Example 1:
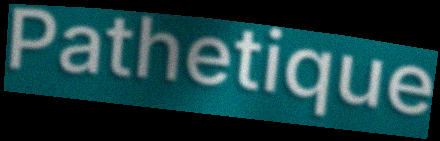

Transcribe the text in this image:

Pathetique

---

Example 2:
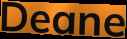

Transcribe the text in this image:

Deane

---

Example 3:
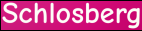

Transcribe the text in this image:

Schlosberg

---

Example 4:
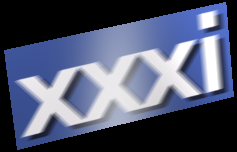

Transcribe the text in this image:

xxxi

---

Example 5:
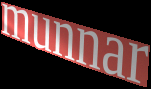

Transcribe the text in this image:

munnar